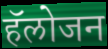
हॅलोजन